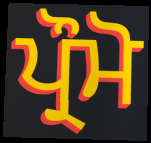
ਪ੍ਰੌਮੋ